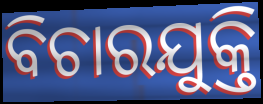
ବିଚାରଯୁକ୍ତି